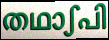
തഥാഽപി